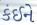
કંઈને